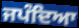
ਜਪੰਦਿਆ